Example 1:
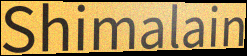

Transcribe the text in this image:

Shimalain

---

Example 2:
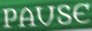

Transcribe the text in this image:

PAUSE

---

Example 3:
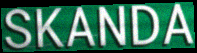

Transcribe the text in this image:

SKANDA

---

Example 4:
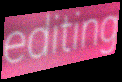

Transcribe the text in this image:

editing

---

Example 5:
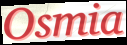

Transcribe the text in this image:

Osmia